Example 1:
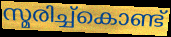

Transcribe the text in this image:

സ്മരിച്ച്കൊണ്ട്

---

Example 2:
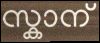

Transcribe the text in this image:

സ്കാന്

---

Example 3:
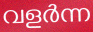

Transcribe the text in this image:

വളർന്ന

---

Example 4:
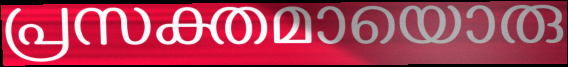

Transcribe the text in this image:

പ്രസക്തമായൊരു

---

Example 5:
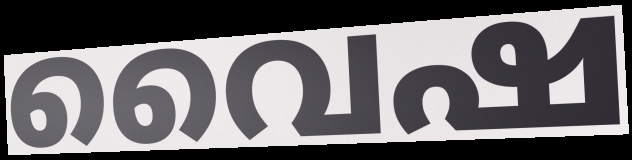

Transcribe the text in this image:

വൈഷ